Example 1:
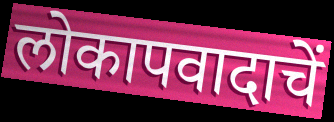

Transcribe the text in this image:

लोकापवादाचें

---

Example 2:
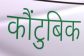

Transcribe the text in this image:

कौंटुबिक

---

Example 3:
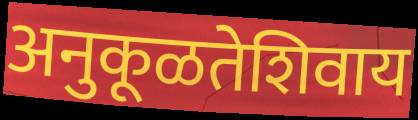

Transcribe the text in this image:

अनुकूळतेशिवाय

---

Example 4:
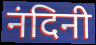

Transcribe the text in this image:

नंदिनी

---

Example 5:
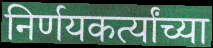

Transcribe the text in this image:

निर्णयकर्त्यांच्या